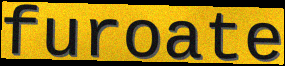
furoate